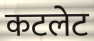
कटलेट